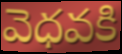
వెధవకి